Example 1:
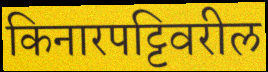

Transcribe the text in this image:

किनारपट्टिवरील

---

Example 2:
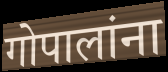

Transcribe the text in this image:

गोपालांना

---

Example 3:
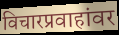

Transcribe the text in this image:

विचारप्रवाहांवर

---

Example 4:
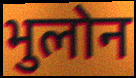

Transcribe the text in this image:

भुलोन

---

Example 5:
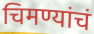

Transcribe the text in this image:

चिमण्यांचं